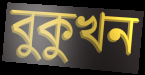
বুকুখন